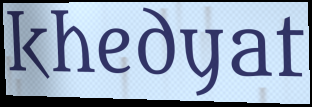
khedyat